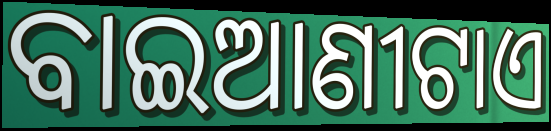
ବାଇଆଣୀଟାଏ